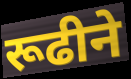
रूढीने